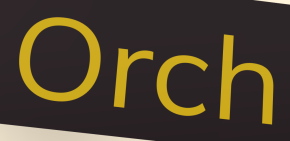
Orch